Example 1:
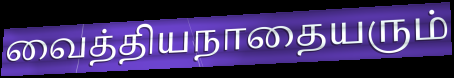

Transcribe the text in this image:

வைத்தியநாதையரும்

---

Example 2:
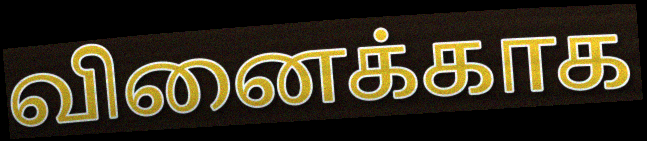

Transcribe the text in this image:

வினைக்காக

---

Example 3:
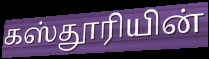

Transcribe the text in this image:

கஸ்தூரியின்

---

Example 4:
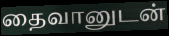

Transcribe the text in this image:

தைவானுடன்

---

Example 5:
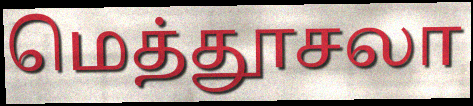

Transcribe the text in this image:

மெத்தூசலா